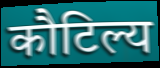
कौटिल्य